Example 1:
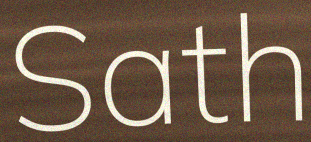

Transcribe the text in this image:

Sath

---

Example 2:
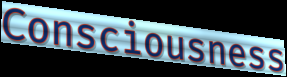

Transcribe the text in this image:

Consciousness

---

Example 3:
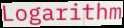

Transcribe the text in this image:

Logarithm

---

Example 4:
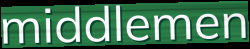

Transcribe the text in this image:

middlemen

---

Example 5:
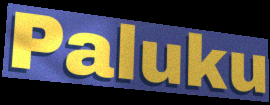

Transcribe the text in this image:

Paluku